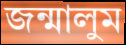
জন্মালুম